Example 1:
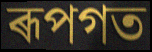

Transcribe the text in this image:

ৰূপগত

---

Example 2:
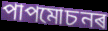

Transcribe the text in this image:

পাপমোচনৰ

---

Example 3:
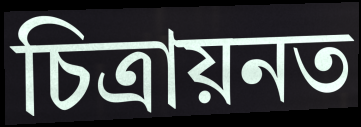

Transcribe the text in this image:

চিত্ৰায়নত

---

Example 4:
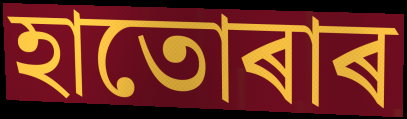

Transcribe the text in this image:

হাতোৰাৰ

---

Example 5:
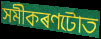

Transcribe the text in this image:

সমীকৰণটোত